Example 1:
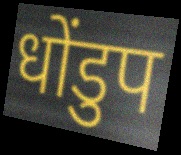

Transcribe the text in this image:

धोंडुप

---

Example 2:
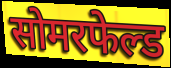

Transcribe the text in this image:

सोमरफेल्ड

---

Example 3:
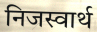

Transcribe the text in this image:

निजस्वार्थ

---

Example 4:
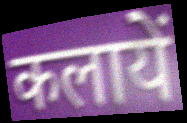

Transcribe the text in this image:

कलायें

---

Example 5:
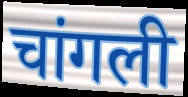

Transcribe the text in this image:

चांगली